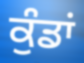
ਕੁੰਡਾਂ